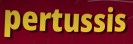
pertussis